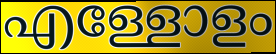
എള്ളോളം